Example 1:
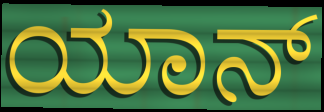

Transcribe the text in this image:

ಯಾನ್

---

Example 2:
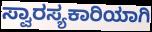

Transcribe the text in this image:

ಸ್ವಾರಸ್ಯಕಾರಿಯಾಗಿ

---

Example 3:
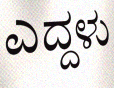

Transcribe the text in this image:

ಎದ್ದಳು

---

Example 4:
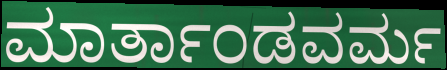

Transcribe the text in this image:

ಮಾರ್ತಾಂಡವರ್ಮ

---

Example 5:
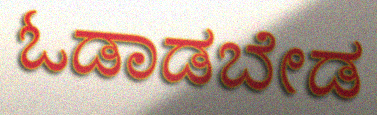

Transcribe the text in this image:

ಓಡಾಡಬೇಡ